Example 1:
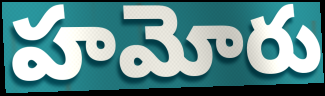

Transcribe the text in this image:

హమోరు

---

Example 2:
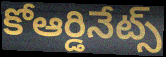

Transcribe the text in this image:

కోఆర్డినేట్స్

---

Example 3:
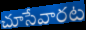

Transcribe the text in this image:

చూసేవారట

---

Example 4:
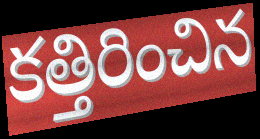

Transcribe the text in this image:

కత్తిరించిన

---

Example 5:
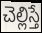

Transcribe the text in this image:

చెల్లిస్తే